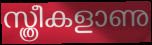
സ്ത്രീകളാണു